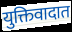
युक्तिवादात